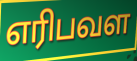
எரிபவள